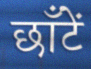
छाँटें